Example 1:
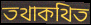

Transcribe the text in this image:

তথাকথিত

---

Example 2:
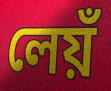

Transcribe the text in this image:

লেয়ঁ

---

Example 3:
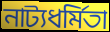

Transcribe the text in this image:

নাট্যধর্মিতা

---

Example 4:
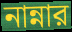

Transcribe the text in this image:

নান্নার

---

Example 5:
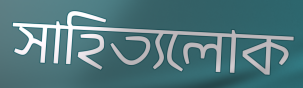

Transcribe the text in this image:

সাহিত্যলোক